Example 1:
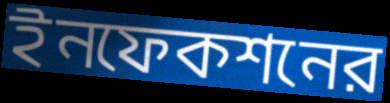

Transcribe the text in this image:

ইনফেকশনের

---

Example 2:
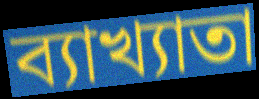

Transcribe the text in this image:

ব্যাখ্যাতা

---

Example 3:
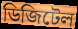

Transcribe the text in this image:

ডিজিটেল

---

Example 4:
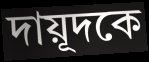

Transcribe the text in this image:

দায়ূদকে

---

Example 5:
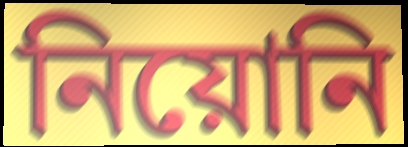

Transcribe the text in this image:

নিয়োনি